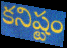
కనిష్టం